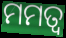
ମମତ୍ୱ